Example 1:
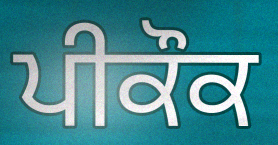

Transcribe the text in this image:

ਪੀਕੌਕ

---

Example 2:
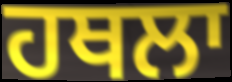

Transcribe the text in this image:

ਹਥਲਾ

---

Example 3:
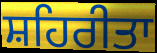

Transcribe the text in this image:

ਸ਼ਹਿਰੀਤਾ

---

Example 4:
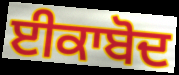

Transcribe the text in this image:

ਈਕਾਬੋਦ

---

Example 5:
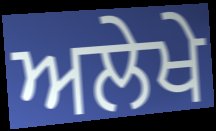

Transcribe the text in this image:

ਅਲੇਖੇ